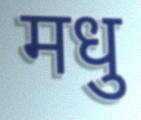
मधु